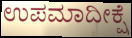
ಉಪಮಾದೀಕ್ಷೆ